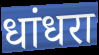
धांधरा